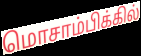
மொசாம்பிக்கில்